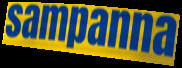
sampanna